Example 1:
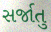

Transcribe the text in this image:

સર્જાતુ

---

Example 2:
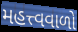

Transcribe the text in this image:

મહત્ત્વવાળો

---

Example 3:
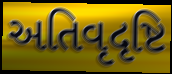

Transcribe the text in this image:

અતિવૃદૃષ્ટિ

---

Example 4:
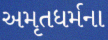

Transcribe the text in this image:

અમૃતધર્મના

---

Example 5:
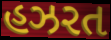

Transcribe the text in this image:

હઝરત